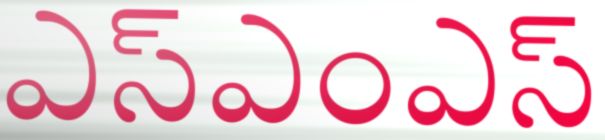
ఎస్ఎంఎస్